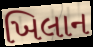
ખિલાન